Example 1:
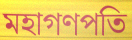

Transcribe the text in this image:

মহাগণপতি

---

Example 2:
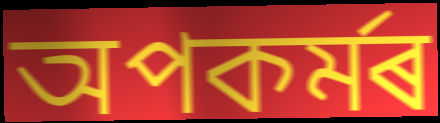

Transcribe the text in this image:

অপকৰ্মৰ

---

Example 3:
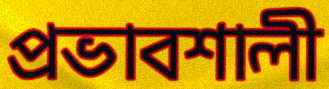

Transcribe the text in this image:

প্ৰভাবশালী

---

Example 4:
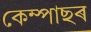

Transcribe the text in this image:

কেম্পাছৰ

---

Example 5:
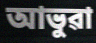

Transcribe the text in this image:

আভুৱা